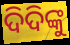
ଦିଦିଙ୍କୁ